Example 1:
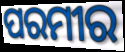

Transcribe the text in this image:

ପରମୀର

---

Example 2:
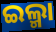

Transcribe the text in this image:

ଇଲ୍ମା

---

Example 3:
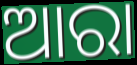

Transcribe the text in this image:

ଆରା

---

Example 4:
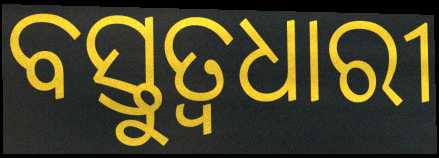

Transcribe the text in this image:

ବସ୍ତୁତ୍ୱଧାରୀ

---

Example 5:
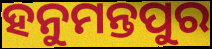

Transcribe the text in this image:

ହନୁମନ୍ତପୁର